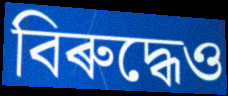
বিৰুদ্ধেও